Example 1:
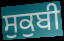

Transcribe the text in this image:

ਸੁਕੁਬੀ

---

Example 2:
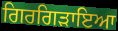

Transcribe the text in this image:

ਗਿਰਗਿੜਾਇਆ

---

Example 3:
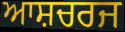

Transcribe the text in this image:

ਆਸ਼ਚਰਜ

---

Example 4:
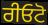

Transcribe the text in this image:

ਰੀਓਟੋ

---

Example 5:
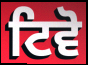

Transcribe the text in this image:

ਟਿਵੋ